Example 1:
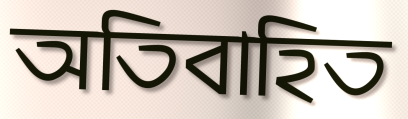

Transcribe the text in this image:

অতিবাহিত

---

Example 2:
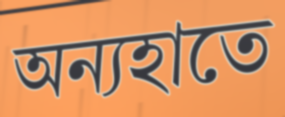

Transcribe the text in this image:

অন্যহাতে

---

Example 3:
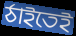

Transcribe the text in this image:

ঠাইতেই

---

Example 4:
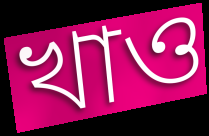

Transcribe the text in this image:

খাও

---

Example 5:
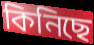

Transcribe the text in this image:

কিনিছে